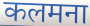
कलमना